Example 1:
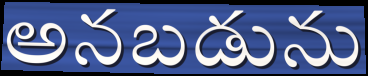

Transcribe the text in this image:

అనబడును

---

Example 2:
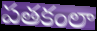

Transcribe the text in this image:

పతకంలా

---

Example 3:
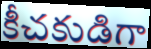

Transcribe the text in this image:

కీచకుడిగా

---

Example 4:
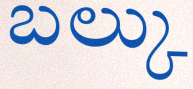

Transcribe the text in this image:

బల్కు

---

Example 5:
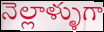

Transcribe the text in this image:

నెల్లాళ్ళుగా